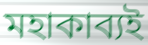
মহাকাব্যই